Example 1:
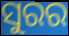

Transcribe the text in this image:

ସୁରର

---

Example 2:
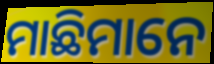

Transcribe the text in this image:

ମାଛିମାନେ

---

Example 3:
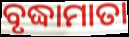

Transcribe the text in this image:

ବୃଦ୍ଧାମାତା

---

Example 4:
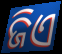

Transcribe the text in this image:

ଜିଏ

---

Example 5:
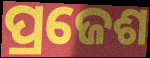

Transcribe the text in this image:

ପ୍ରଜେଶ